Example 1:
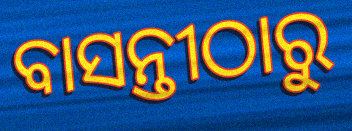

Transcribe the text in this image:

ବାସନ୍ତୀଠାରୁ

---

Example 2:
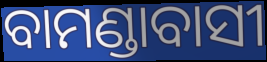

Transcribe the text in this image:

ବାମଣ୍ଡାବାସୀ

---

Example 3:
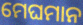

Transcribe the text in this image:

ମେଘମାନ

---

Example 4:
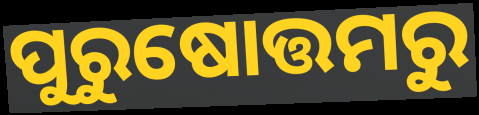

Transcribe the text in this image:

ପୁରୁଷୋତ୍ତମରୁ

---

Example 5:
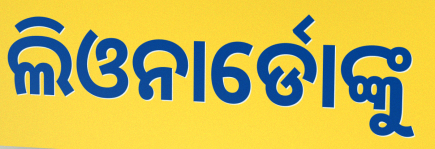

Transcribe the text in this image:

ଲିଓନାର୍ଡୋଙ୍କୁ